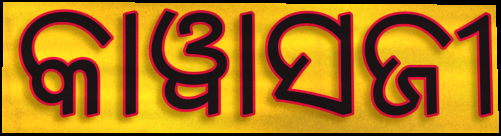
କାୱାସଜୀ